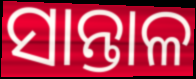
ସାନ୍ତାଳ